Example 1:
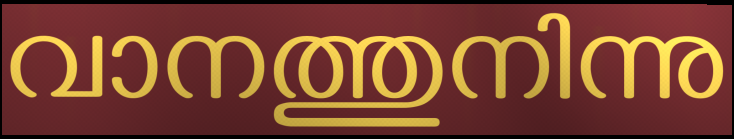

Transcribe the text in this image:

വാനത്തുനിന്നു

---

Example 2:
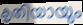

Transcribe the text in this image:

കൃതിയായും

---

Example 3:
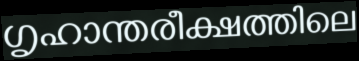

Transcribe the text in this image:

ഗൃഹാന്തരീക്ഷത്തിലെ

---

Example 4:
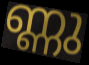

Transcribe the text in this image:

ണ്ണു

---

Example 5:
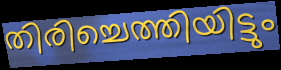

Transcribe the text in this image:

തിരിച്ചെത്തിയിട്ടും